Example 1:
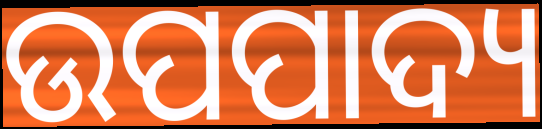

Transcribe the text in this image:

ଉପପାଦ୍ୟ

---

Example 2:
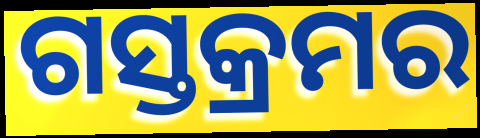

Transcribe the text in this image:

ଗସ୍ତକ୍ରମର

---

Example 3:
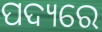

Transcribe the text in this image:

ପଦ୍ୟରେ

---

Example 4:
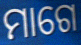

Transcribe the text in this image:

ମାଗେ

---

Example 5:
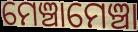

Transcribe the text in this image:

ମେଞ୍ଚାମେଞ୍ଚା